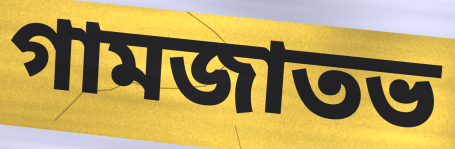
গামজাতভ